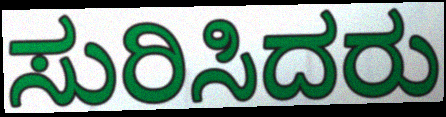
ಸುರಿಸಿದರು